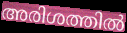
അരിശത്തിൽ